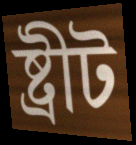
ষ্ট্ৰীট